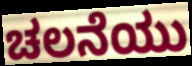
ಚಲನೆಯು